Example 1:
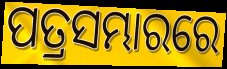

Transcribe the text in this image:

ପତ୍ରସମ୍ଭାରରେ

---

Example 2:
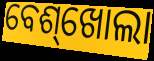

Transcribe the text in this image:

ବେଶ୍‌ଖୋଲା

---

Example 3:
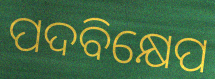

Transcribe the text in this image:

ପଦବିକ୍ଷେପ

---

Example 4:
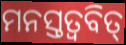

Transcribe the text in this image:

ମନସ୍ତତ୍ଵବିତ୍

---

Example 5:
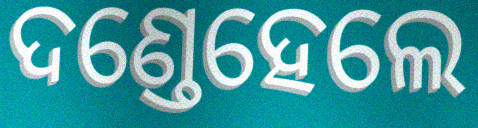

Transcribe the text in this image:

ଦଣ୍ଡେହେଲେ